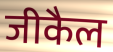
जीकैल